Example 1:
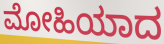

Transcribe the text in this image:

ಮೋಹಿಯಾದ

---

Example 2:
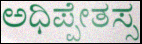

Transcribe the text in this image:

ಅಧಿಪ್ಪೇತಸ್ಸ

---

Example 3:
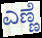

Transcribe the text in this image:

ಎಣ್ಣೆ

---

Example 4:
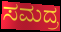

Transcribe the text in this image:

ಸಮದ್ರ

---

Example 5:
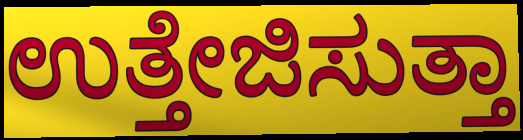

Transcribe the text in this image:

ಉತ್ತೇಜಿಸುತ್ತಾ